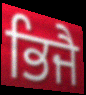
ਭਿਜੈ